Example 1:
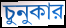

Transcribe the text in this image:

চুনুকার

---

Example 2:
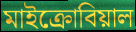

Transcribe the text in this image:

মাইক্রোবিয়াল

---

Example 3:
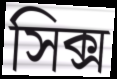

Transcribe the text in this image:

সিক্স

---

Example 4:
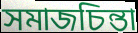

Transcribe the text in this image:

সমাজচিন্তা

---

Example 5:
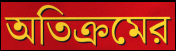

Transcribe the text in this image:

অতিক্রমের